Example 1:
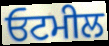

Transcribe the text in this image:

ਓਟਮੀਲ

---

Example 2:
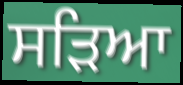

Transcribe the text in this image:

ਸੜਿਆ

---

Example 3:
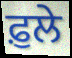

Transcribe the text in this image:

ਫ਼ੁਲੇ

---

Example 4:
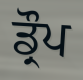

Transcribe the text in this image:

ਡ੍ਰੌਪ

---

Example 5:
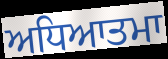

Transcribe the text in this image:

ਅਧਿਆਤਮਾ